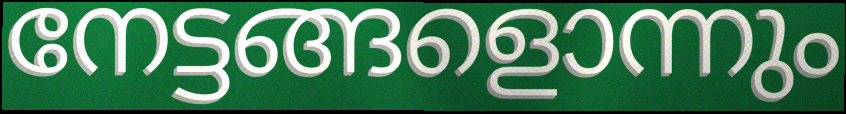
നേട്ടങ്ങളൊന്നും